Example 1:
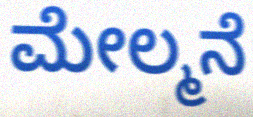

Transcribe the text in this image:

ಮೇಲ್ಮನೆ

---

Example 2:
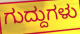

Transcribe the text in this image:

ಗುದ್ದುಗಳು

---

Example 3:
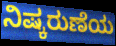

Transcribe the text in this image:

ನಿಷ್ಕರುಣೆಯ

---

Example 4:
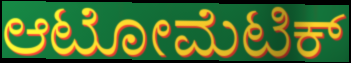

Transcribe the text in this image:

ಆಟೋಮೆಟಿಕ್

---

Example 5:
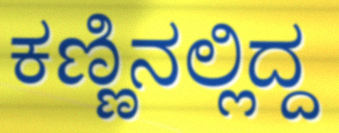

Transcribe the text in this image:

ಕಣ್ಣಿನಲ್ಲಿದ್ದ